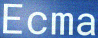
Ecma